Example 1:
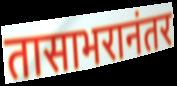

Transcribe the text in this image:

तासाभरानंतर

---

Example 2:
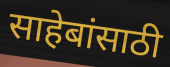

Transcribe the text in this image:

साहेबांसाठी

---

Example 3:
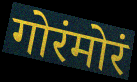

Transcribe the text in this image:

गोरंमोरं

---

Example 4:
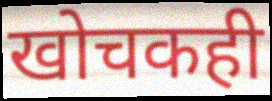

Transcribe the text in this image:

खोचकही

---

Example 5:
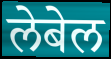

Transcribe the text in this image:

लेबेल